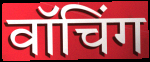
वॉचिंग